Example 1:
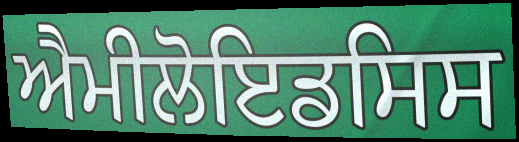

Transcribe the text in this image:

ਐਮੀਲੋਇਡਸਿਸ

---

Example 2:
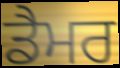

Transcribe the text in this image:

ਡੈਮਰ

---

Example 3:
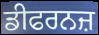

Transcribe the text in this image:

ਡੀਫਰਨਜ਼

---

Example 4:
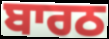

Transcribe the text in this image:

ਬਾਰਠ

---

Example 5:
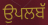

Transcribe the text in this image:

ਉਪਲਬੱ